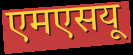
एमएसयू